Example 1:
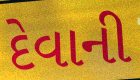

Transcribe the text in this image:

દેવાની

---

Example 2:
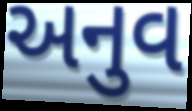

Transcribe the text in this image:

અનુવ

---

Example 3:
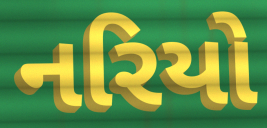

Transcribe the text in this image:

નરિયો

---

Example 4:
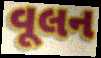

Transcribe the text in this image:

વૂલન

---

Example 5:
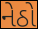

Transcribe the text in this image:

નેઠો